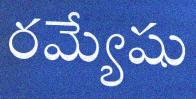
రమ్యేషు